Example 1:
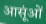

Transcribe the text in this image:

आसूंओं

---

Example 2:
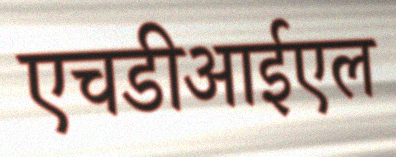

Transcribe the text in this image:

एचडीआईएल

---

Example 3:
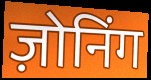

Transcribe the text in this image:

ज़ोनिंग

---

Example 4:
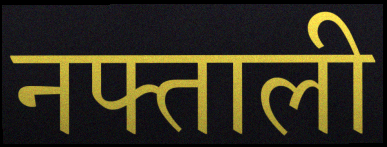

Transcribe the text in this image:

नफ्ताली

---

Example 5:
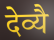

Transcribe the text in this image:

देव्यै